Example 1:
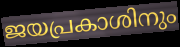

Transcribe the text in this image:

ജയപ്രകാശിനും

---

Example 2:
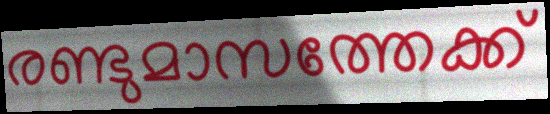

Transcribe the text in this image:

രണ്ടുമാസത്തേക്ക്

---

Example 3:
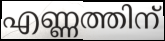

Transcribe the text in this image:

എണ്ണത്തിന്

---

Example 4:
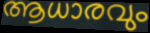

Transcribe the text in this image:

ആധാരവും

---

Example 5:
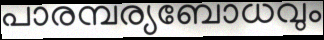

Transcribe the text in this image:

പാരമ്പര്യബോധവും